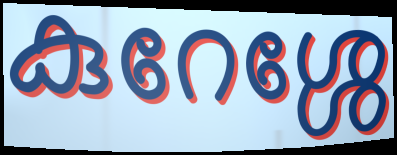
കുറേശ്ശേ